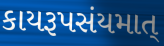
કાયરૂપસંયમાત્